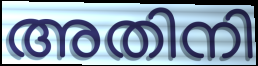
അതിനി